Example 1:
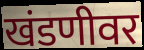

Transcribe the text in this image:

खंडणीवर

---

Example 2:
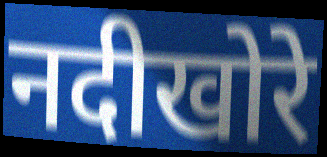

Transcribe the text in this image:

नदीखोरे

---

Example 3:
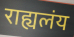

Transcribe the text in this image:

राह्यलंय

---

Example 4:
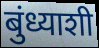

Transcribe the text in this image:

बुंध्याशी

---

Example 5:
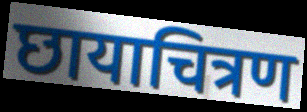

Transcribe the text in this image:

छायाचित्रण